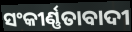
ସଂକୀର୍ଣ୍ଣତାବାଦୀ